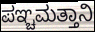
ಪಞ್ಚಮತ್ತಾನಿ